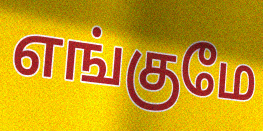
எங்குமே